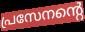
പ്രസേനന്റെ